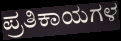
ಪ್ರತಿಕಾಯಗಳ